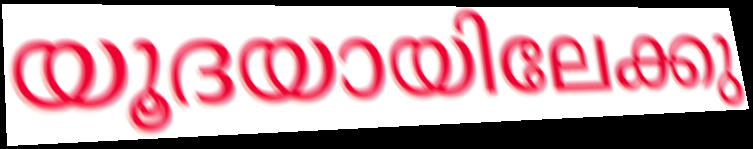
യൂദയായിലേക്കു